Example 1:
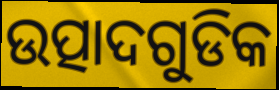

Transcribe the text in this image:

ଉତ୍ପାଦଗୁଡିକ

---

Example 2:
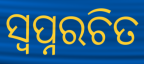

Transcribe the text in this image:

ସ୍ୱପ୍ନରଚିତ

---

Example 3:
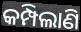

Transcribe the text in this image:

କମ୍ପିଲାଣି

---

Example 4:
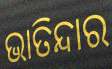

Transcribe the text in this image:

ଭାତିନ୍ଦାର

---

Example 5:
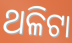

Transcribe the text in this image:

ଥଳିଟା